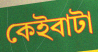
কেইবাটা